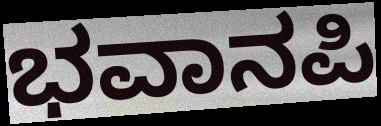
ಭವಾನಪಿ